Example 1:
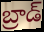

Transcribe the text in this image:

బ్రాడ్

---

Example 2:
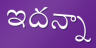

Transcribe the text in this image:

ఇదన్నా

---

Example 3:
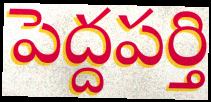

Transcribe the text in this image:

పెద్దపర్తి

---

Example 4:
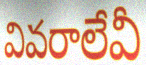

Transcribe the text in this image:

వివరాలేవీ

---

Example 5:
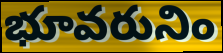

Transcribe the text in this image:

భూవరునిం